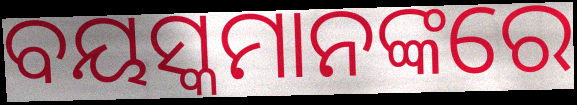
ବୟସ୍କମାନଙ୍କରେ